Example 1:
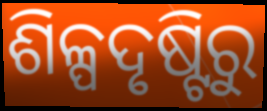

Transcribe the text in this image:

ଶିଳ୍ପଦୃଷ୍ଟିରୁ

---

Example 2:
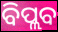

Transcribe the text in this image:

ବିପ୍ଲବ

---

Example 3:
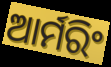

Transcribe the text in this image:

ଆର୍ମରିଂ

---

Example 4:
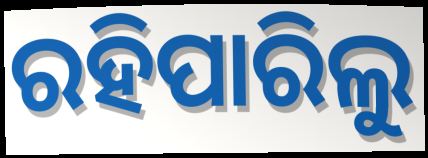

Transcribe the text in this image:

ରହିପାରିଲୁ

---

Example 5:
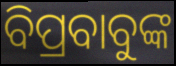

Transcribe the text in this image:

ବିପ୍ରବାବୁଙ୍କ